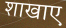
शाखाए